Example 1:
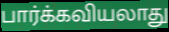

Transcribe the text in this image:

பார்க்கவியலாது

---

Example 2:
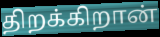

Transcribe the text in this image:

திறக்கிறான்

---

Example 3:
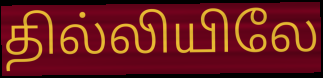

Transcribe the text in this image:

தில்லியிலே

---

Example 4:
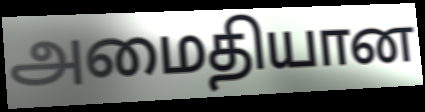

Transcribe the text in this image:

அமைதியான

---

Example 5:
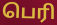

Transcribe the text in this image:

பெரி